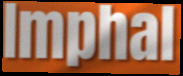
Imphal